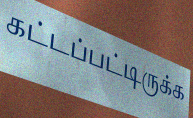
கட்டப்பட்டிருக்க